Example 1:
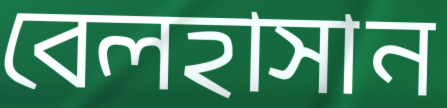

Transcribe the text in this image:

বেলহাসান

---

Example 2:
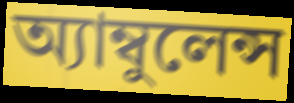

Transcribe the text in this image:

অ্যাম্বুলেন্স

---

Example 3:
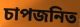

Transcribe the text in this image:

চাপজনিত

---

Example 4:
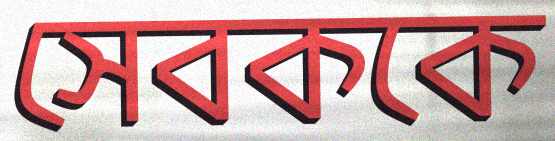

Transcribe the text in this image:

সেবককে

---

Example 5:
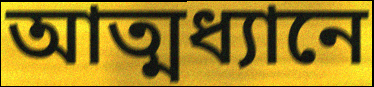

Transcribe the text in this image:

আত্মধ্যানে